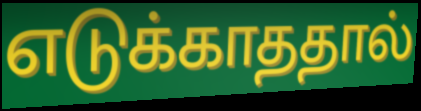
எடுக்காததால்